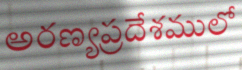
అరణ్యప్రదేశములో